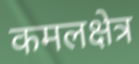
कमलक्षेत्र